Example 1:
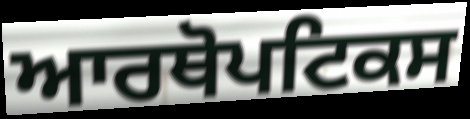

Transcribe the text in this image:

ਆਰਥੋਪਟਿਕਸ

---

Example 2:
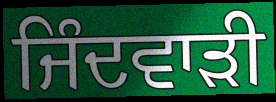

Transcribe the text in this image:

ਜਿੰਦਵਾੜੀ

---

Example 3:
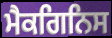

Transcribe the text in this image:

ਮੈਕਗਿਨਿਸ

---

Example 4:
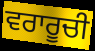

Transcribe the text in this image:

ਵਰਾਰੂਚੀ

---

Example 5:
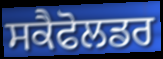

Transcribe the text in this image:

ਸਕੈਫੋਲਡਰ